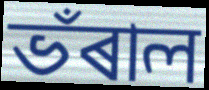
ভঁৰাল